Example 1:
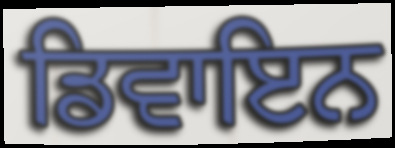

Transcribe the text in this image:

ਡਿਵਾਇਨ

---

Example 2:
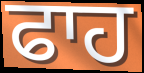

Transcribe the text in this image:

ਫਾਹ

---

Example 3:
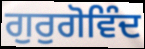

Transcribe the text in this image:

ਗੁਰੁਗੋਵਿੰਦ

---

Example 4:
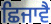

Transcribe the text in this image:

ਛਿਜਾਵੈ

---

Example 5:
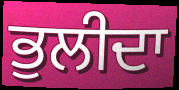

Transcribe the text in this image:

ਭੁਲੀਦਾ